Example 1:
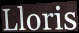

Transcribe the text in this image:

Lloris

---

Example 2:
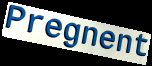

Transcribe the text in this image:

Pregnent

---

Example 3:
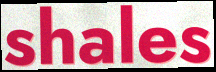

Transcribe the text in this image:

shales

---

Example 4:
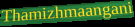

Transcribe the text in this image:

Thamizhmaangani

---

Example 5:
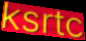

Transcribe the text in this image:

ksrtc